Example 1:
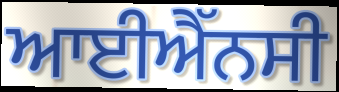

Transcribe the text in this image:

ਆਈਐੱਨਸੀ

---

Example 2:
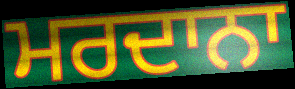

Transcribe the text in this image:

ਮਰਦਾਨਾ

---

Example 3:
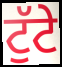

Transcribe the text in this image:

ਟੁੱਟੇ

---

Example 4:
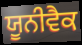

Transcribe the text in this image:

ਯੂਨੀਵੈਕ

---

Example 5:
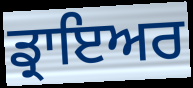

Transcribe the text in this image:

ਡ੍ਰਾਇਅਰ